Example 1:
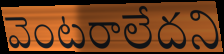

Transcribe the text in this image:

వెంటరాలేదని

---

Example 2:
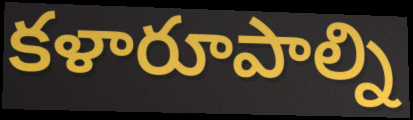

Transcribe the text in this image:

కళారూపాల్ని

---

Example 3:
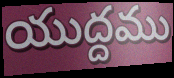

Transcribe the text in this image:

యుద్దము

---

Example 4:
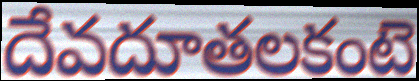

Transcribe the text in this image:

దేవదూతలకంటె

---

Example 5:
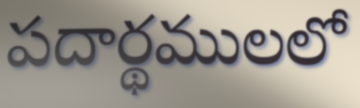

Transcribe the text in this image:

పదార్థములలో